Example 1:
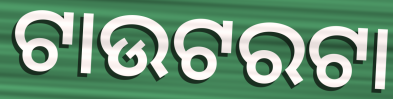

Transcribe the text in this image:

ଟାଉଟରଟା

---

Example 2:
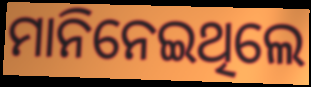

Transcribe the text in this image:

ମାନିନେଇଥିଲେ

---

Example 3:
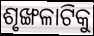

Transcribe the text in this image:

ଶୃଙ୍ଖଳାଟିକୁ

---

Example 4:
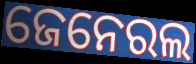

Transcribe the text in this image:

ଜେନେରଲ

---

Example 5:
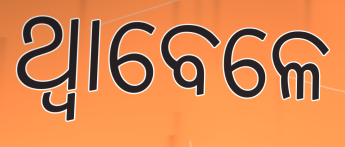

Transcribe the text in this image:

ଥ୍ବାବେଳେ